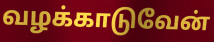
வழக்காடுவேன்